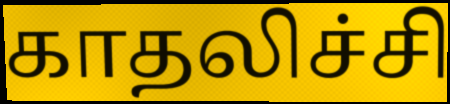
காதலிச்சி